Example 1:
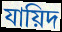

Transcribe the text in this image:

যায়িদ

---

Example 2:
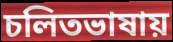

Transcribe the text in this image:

চলিতভাষায়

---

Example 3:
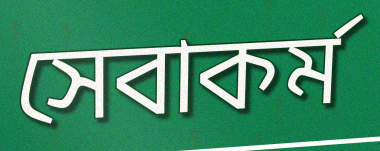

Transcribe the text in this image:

সেবাকর্ম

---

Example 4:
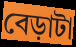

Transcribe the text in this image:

বেড়াটা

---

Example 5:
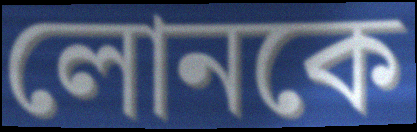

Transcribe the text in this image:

লোনকে